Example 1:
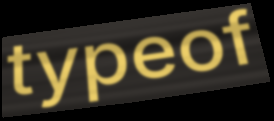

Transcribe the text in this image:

typeof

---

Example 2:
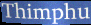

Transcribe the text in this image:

Thimphu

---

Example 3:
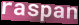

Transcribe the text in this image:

raspan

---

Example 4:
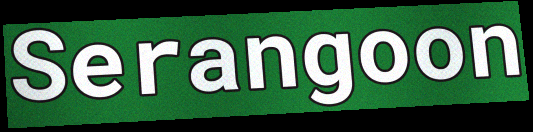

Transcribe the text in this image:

Serangoon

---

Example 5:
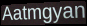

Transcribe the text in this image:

Aatmgyan